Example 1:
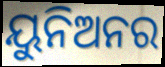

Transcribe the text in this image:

ୟୁନିଅନର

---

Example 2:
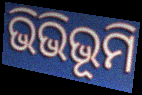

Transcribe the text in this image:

ଭିଭିଭୂମି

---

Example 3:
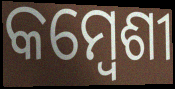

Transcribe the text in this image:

କମ୍ବେଶୀ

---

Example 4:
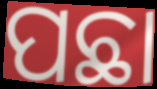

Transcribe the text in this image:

ପଛା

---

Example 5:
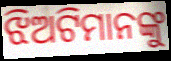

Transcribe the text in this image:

ଝିଅଟିମାନଙ୍କୁ